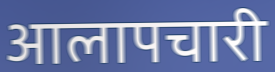
आलापचारी